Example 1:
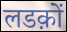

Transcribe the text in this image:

लडक़ों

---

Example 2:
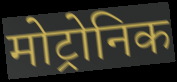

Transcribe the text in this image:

मोट्रोनिक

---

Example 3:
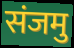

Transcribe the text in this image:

संजमु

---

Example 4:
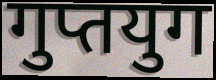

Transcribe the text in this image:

गुप्तयुग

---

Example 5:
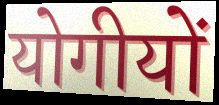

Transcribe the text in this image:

योगीयों